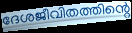
ദേശജീവിതത്തിന്റെ